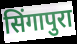
सिंगापुरा